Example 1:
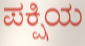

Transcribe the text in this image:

ಪಕ್ಷಿಯ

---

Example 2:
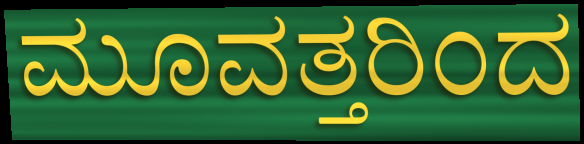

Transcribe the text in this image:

ಮೂವತ್ತರಿಂದ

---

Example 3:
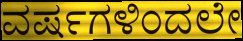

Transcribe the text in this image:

ವರ್ಷಗಳಿಂದಲೇ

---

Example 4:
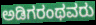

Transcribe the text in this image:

ಅಡಿಗರಂಥವರು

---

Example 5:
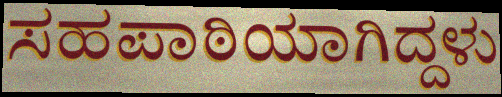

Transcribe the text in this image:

ಸಹಪಾಠಿಯಾಗಿದ್ದಳು